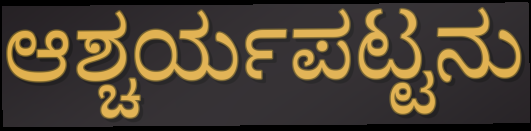
ಆಶ್ಚರ್ಯಪಟ್ಟನು